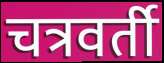
चत्रवर्ती